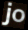
jo